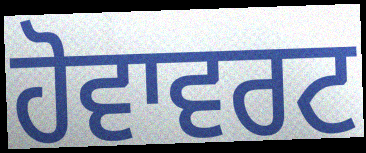
ਹੋਵਾਵਰਟ